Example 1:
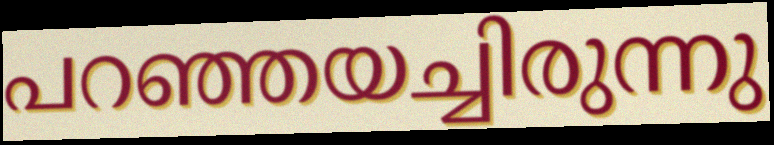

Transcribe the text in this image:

പറഞ്ഞയച്ചിരുന്നു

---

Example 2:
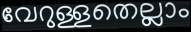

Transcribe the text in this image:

വേറുള്ളതെല്ലാം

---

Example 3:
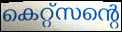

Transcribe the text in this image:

കെറ്റ്സന്റെ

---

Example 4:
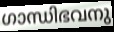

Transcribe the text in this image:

ഗാന്ധിഭവനു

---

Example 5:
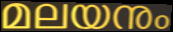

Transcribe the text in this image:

മലയനും